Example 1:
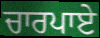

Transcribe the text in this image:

ਚਾਰਪਾਏ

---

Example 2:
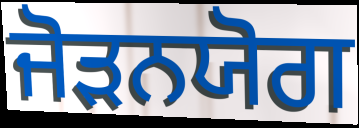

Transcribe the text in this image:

ਜੋੜਨਯੋਗ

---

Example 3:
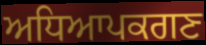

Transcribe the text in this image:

ਅਧਿਆਪਕਗਣ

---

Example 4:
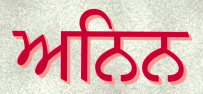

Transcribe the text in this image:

ਅਨਿਨ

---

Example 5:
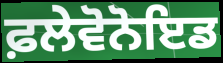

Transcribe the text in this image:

ਫ਼ਲੇਵੋਨੋਇਡ